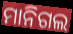
ମାନିଗଲ